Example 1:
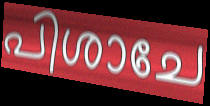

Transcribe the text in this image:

പിശാചേ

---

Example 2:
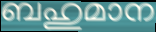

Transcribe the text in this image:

ബഹുമാന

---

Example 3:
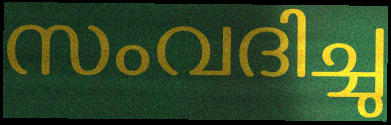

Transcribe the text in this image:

സംവദിച്ചു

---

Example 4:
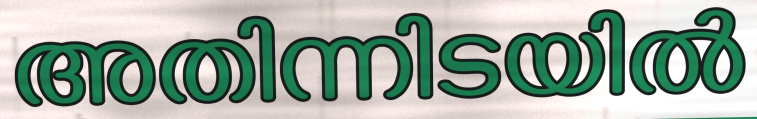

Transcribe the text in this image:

അതിന്നിടയിൽ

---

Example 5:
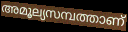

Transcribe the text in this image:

അമൂല്യസമ്പത്താണ്